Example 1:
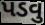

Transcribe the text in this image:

પડવુ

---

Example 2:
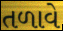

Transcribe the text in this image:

તળાવે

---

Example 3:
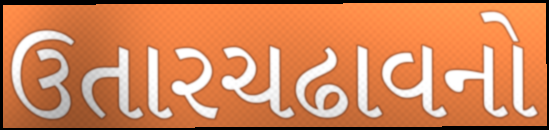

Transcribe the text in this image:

ઉતારચઢાવનો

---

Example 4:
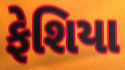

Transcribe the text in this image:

ફેશિયા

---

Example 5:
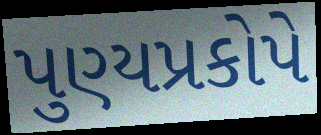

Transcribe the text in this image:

પુણ્યપ્રકોપે